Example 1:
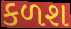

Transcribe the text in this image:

કળશ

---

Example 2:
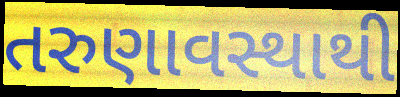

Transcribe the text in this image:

તરુણાવસ્થાથી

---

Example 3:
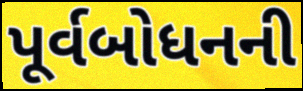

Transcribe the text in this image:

પૂર્વબોધનની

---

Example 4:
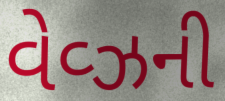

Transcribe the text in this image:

વેવ્ઝની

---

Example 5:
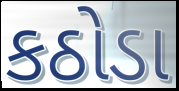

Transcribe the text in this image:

કઠોડા